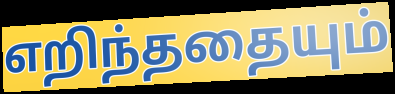
எறிந்ததையும்